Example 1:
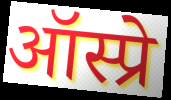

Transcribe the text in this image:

ऑस्प्रे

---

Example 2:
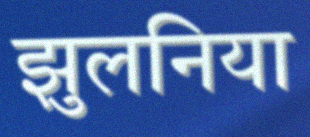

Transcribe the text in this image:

झुलनिया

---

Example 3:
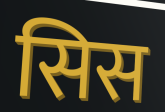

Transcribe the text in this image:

सिस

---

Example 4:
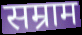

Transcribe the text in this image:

सम्राम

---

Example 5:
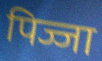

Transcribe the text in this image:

पिज्जा